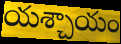
యశ్చాయం